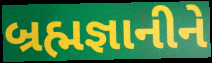
બ્રહ્મજ્ઞાનીને